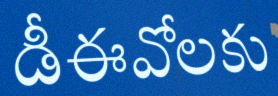
డీఈవోలకు